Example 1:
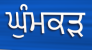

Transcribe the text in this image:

ਘੁੰਮਕੜ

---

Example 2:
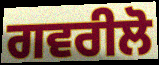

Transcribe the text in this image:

ਗਵਰੀਲੋ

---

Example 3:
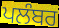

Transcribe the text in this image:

ਪਲੰਬਰ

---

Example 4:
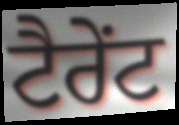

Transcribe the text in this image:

ਟੈਰੇਂਟ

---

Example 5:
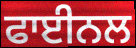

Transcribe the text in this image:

ਫਾਈਨਲ